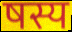
षस्य